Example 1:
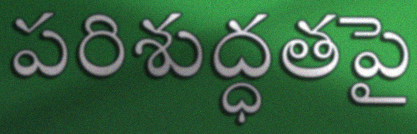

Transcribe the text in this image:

పరిశుద్ధతపై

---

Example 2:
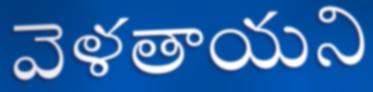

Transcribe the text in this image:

వెళతాయని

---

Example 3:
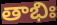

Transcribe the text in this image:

తాభిః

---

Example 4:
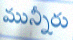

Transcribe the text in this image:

మున్నీరు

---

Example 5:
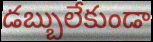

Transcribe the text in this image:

డబ్బులేకుండా